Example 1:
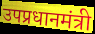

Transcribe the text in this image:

उपप्रधानमंत्री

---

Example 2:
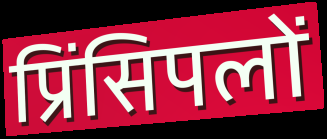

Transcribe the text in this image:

प्रिंसिपलों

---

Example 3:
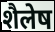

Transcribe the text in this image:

शैलेष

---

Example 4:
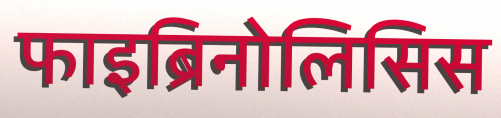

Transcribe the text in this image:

फाइब्रिनोलिसिस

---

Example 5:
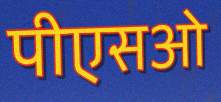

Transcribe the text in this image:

पीएसओ